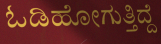
ಓಡಿಹೋಗುತ್ತಿದ್ದೆ